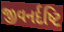
જીવનર્દષ્ટિ